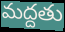
మద్దతు